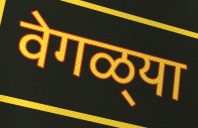
वेगळ्‌या